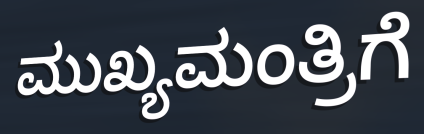
ಮುಖ್ಯಮಂತ್ರಿಗೆ